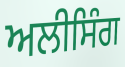
ਅਲੀਸਿੰਗ